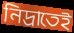
নিদ্রাতেই